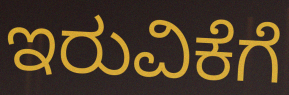
ಇರುವಿಕೆಗೆ